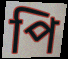
পি